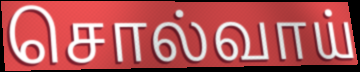
சொல்வாய்